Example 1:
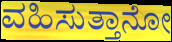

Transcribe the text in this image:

ವಹಿಸುತ್ತಾನೋ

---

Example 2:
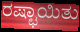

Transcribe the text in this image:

ರಷ್ಟಾಯಿತು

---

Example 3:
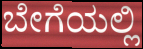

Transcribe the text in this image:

ಬೇಗೆಯಲ್ಲಿ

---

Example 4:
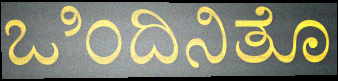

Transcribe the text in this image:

ಒಿಂದಿನಿತೊ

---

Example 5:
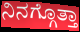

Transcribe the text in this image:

ನಿನಗ್ಗೊತ್ತಾ